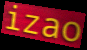
izao